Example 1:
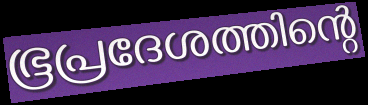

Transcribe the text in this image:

ഭൂപ്രദേശത്തിന്റെ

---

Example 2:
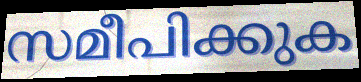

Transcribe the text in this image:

സമീപിക്കുക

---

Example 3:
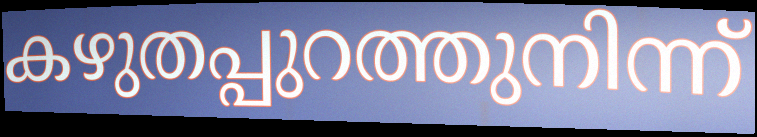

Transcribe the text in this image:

കഴുതപ്പുറത്തുനിന്ന്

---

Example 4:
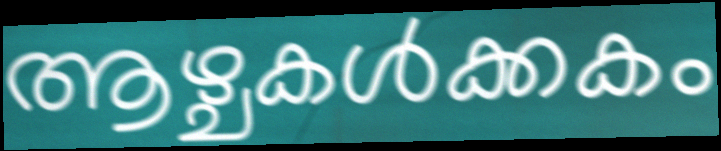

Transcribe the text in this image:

ആഴ്ചകൾക്കകം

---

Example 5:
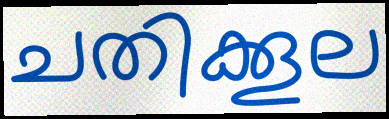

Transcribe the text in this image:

ചതിക്കൂല